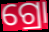
ଗ୍ରୋ